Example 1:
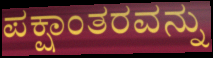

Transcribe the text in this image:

ಪಕ್ಷಾಂತರವನ್ನು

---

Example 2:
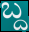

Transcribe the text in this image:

ಬ್ದ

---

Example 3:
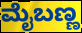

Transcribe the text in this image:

ಮೈಬಣ್ಣ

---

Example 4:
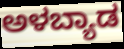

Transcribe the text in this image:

ಅಳಬ್ಯಾಡ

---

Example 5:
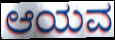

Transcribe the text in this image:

ಆಯವ